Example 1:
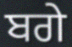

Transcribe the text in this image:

ਬਗੇ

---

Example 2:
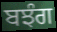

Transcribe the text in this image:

ਬਝੰਗ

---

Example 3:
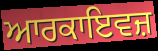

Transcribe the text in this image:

ਆਰਕਾਇਵਜ਼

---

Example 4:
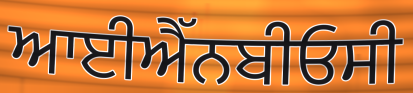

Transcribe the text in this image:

ਆਈਐੱਨਬੀਓਸੀ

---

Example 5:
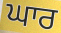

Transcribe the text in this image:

ਘਾਰ